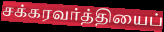
சக்கரவர்த்தியைப்